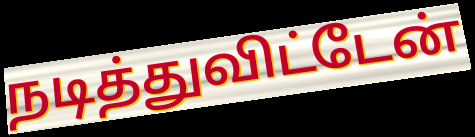
நடித்துவிட்டேன்